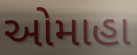
ઓમાહા